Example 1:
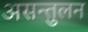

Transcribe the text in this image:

असन्तुलन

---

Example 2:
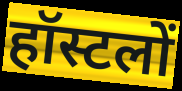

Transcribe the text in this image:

हॉस्टलों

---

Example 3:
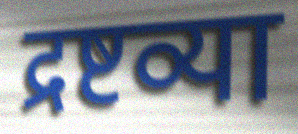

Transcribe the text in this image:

द्रष्टव्या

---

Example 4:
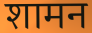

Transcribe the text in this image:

शामन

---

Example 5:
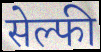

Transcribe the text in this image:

सेल्फी